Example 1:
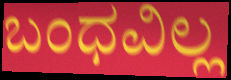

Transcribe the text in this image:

ಬಂಧವಿಲ್ಲ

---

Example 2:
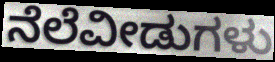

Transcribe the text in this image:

ನೆಲೆವೀಡುಗಳು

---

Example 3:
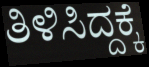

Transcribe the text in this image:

ತಿಳಿಸಿದ್ದಕ್ಕೆ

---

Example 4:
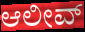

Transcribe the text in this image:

ಆಲೀವ್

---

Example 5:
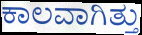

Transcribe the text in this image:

ಕಾಲವಾಗಿತ್ತು